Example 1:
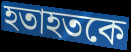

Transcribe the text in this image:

হতাহতকে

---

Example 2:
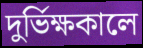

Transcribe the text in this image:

দুর্ভিক্ষকালে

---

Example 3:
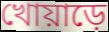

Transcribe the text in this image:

খোয়াড়ে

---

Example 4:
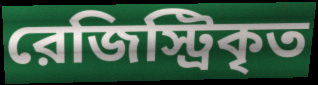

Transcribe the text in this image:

রেজিস্ট্রিকৃত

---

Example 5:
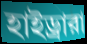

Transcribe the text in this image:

হাইড্রারা